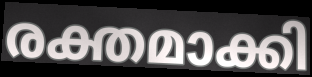
രക്തമാക്കി